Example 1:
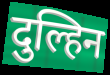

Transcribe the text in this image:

दुल्हिन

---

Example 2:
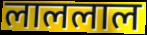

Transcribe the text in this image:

लाललाल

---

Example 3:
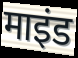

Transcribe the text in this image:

माइंड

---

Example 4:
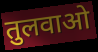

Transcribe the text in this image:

तुलवाओ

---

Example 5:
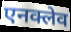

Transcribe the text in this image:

एनक्लेव